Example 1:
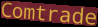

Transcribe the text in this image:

Comtrade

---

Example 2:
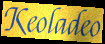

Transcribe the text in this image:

Keoladeo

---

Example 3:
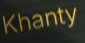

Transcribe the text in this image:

Khanty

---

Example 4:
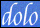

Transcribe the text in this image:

dolo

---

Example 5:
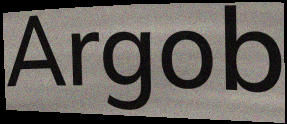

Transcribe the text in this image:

Argob